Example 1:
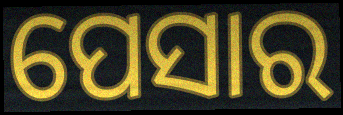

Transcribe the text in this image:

ପେସାର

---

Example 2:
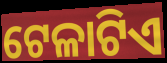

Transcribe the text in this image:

ଟେଳାଟିଏ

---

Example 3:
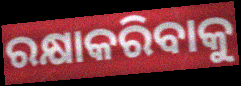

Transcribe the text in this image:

ରକ୍ଷାକରିବାକୁ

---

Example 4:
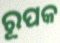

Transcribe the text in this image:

ରୂପକ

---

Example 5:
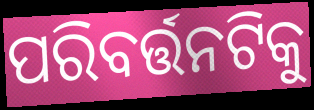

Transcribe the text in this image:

ପରିବର୍ତ୍ତନଟିକୁ